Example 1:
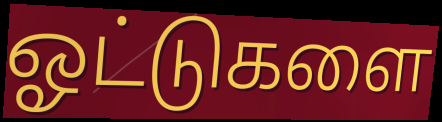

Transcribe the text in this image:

ஓட்டுகளை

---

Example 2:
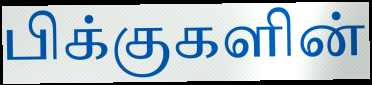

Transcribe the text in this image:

பிக்குகளின்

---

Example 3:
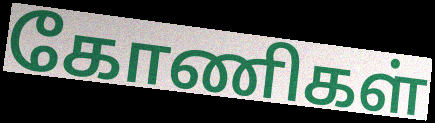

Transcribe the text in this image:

கோணிகள்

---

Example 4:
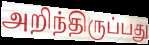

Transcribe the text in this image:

அறிந்திருப்பது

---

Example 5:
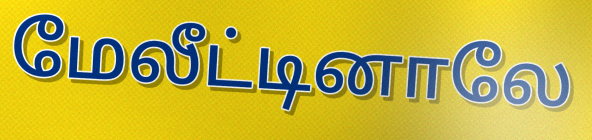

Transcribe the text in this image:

மேலீட்டினாலே